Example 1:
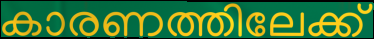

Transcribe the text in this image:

കാരണത്തിലേക്ക്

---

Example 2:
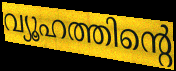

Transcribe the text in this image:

വ്യൂഹത്തിന്റെ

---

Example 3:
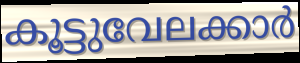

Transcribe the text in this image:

കൂട്ടുവേലക്കാർ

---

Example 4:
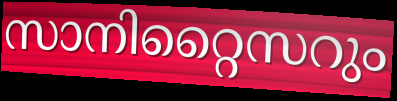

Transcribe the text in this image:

സാനിറ്റൈസറും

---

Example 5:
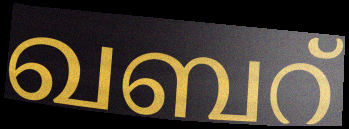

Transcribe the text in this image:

ഖബറ്